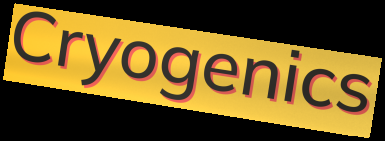
Cryogenics